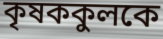
কৃষককুলকে